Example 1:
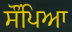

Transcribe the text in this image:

ਸੌਂਪਿਆ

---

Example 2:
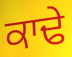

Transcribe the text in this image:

ਕਾਢੇ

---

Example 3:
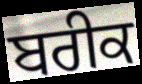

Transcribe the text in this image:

ਬਰੀਕ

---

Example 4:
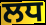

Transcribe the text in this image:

ਲਧ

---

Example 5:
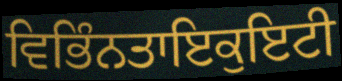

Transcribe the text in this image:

ਵਿਭਿੰਨਤਾਇਕੁਇਟੀ